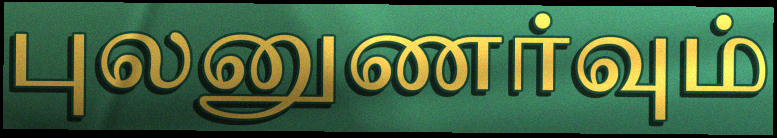
புலனுணர்வும்